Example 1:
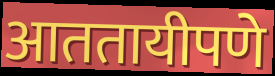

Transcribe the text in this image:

आततायीपणे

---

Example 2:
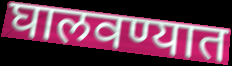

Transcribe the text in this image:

घालवण्यात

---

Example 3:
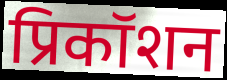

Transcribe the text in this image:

प्रिकॉशन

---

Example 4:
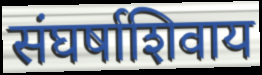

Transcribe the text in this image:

संघर्षाशिवाय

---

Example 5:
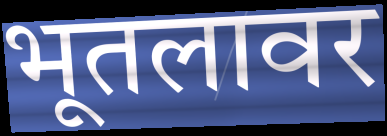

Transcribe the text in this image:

भूतलावर